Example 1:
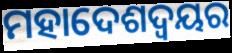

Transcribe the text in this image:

ମହାଦେଶଦ୍ଵୟର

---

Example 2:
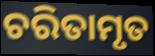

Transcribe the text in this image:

ଚରିତାମୃତ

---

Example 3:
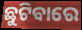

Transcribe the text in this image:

ଛୁଟିବାରେ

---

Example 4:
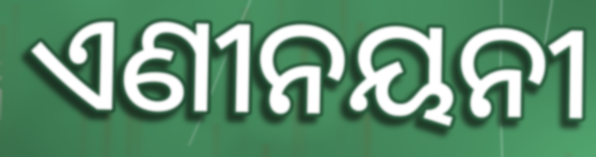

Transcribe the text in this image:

ଏଣୀନୟନୀ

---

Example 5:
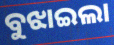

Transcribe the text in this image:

ବୁଝାଇଲା